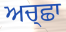
ਅਚ੍ਛਾ